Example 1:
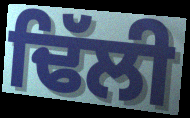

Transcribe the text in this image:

ਢਿੱਲੀ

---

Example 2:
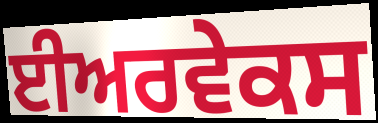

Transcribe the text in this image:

ਈਅਰਵੇਕਸ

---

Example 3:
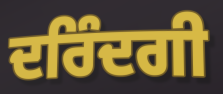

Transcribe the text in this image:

ਦਰਿੰਦਗੀ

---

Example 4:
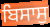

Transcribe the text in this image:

ਬਿਸਾਸੁ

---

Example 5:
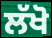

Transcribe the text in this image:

ਲੱਖੋ